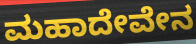
ಮಹಾದೇವೇನ